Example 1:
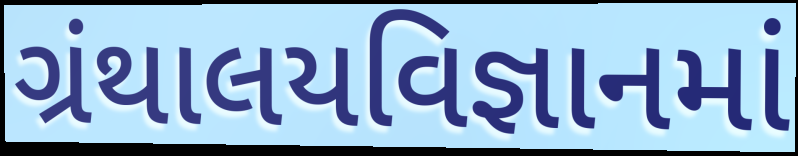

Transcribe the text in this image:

ગ્રંથાલયવિજ્ઞાનમાં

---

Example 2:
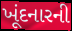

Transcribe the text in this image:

ખૂંદનારની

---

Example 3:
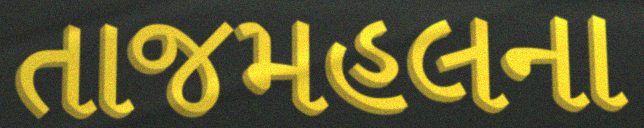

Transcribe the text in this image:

તાજમહલના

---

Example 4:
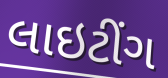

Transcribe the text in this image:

લાઇટીંગ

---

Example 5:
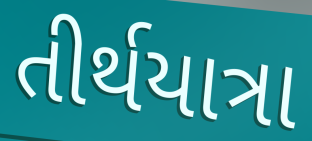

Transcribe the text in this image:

તીર્થયાત્રા